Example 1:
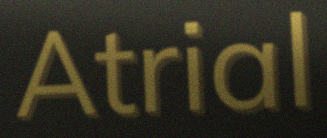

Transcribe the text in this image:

Atrial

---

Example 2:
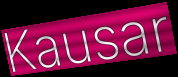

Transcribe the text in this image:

Kausar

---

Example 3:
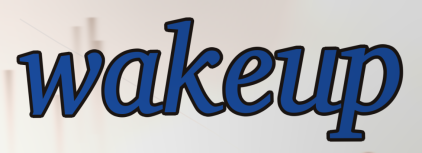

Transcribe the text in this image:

wakeup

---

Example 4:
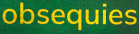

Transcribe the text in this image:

obsequies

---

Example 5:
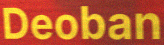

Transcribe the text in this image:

Deoban